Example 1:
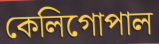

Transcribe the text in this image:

কেলিগোপাল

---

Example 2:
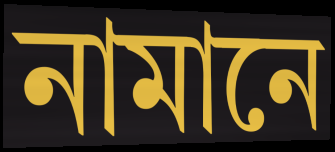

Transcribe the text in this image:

নামানে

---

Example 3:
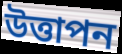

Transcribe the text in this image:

উত্তাপন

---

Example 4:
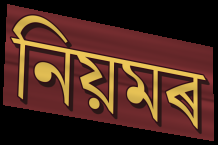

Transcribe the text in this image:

নিয়মৰ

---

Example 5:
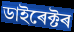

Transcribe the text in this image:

ডাইৰেক্টৰ